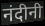
नंदीनी